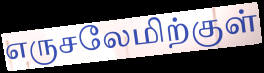
எருசலேமிற்குள்